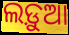
ଲଡ଼ୁଆ